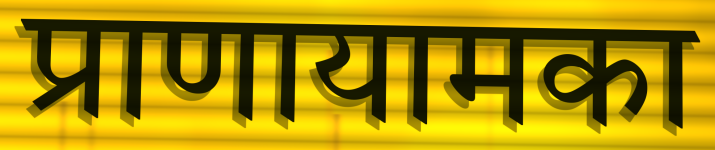
प्राणायामका